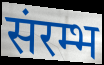
संरम्भ